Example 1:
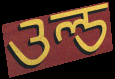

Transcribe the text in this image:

ওল্ড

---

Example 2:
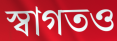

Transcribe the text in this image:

স্বাগতও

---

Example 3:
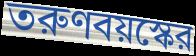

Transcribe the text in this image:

তরুণবয়স্কের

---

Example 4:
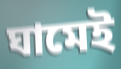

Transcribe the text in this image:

ঘামেই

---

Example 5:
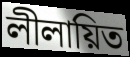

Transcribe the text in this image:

লীলায়িত